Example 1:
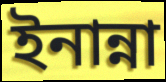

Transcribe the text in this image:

ইনান্না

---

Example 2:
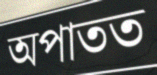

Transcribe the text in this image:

অপাতত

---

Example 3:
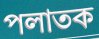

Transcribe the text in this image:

পলাতক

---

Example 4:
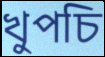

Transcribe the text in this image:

খুপচি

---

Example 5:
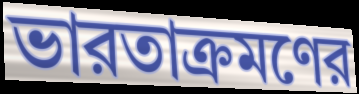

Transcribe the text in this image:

ভারতাক্রমণের